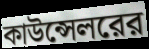
কাউন্সেলরের